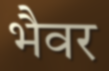
भैवर